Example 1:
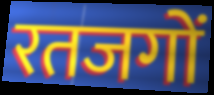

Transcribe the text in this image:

रतजगों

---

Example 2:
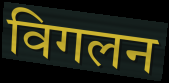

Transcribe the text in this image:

विगलन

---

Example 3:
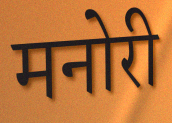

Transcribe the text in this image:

मनोरी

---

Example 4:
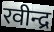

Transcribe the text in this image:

रवीन्द्र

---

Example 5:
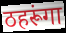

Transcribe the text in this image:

ठहरूंगा